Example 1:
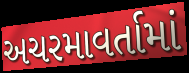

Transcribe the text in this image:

અચરમાવર્તામાં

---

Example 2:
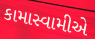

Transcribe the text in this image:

કામાસ્વામીએ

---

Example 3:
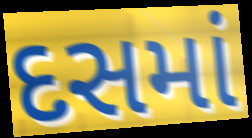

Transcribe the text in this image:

દસમાં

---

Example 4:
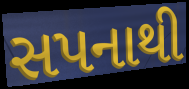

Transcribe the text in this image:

સપનાથી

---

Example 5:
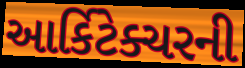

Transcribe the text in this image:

આર્કિટેક્ચરની